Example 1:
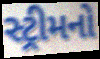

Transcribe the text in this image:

સ્ટ્રીમનો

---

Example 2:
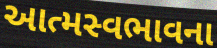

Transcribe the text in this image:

આત્મસ્વભાવના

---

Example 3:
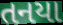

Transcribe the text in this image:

તનયા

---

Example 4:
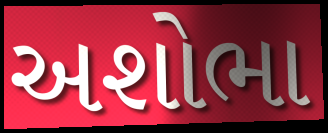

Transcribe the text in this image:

અશોભા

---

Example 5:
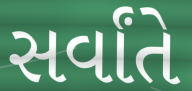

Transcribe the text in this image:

સર્વાંતે